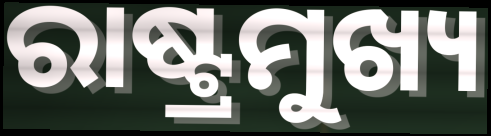
ରାଷ୍ଟ୍ରମୁଖ୍ୟ